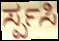
ರ್ಸ್ಪಸಿ